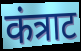
कंत्राट